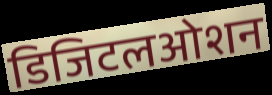
डिजिटलओशन